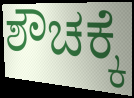
ಶೌಚಕ್ಕೆ